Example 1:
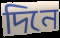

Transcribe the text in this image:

দিনে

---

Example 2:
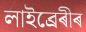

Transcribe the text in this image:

লাইব্ৰেৰীৰ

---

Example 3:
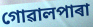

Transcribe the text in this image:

গোৱালপাৰা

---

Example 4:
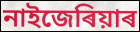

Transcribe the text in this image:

নাইজেৰিয়াৰ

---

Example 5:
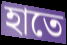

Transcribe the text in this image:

হাতে